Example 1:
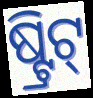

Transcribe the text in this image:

ଷ୍ଟ୍ରିଟ୍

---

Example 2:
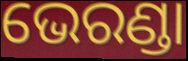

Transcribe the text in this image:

ଭେରଣ୍ଡା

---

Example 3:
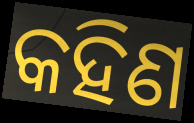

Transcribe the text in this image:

କହିଣ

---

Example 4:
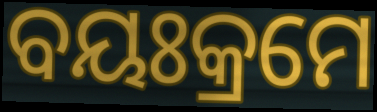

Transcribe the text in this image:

ବୟଃକ୍ରମେ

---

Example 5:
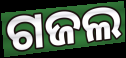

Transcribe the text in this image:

ଗଜଲ